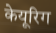
केयूरिग